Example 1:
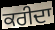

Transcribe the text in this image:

ਕਰੀਦਾ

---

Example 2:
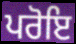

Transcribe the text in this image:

ਪਰੋਇ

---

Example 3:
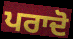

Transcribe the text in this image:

ਪਰਾਦੋ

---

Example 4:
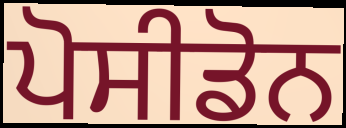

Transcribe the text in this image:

ਪੋਸੀਡੋਨ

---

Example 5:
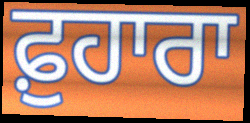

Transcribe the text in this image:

ਫ਼ੁਹਾਰਾ